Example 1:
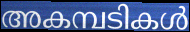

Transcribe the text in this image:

അകമ്പടികൾ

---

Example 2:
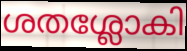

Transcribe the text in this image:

ശതശ്ലോകി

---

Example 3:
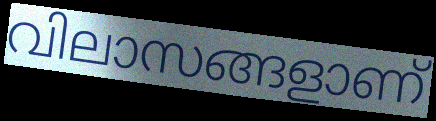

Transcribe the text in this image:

വിലാസങ്ങളാണ്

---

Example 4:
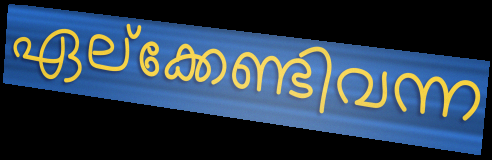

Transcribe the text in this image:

ഏല്ക്കേണ്ടിവന്ന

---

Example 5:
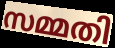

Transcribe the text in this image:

സമ്മതി